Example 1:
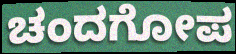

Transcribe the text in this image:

ಚಂದಗೋಪ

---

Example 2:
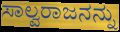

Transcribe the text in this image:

ಸಾಲ್ವರಾಜನನ್ನು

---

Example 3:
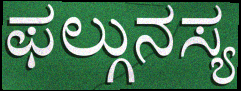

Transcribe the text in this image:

ಫಲ್ಗುನಸ್ಯ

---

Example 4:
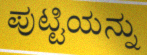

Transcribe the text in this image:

ಪುಟ್ಟಿಯನ್ನು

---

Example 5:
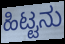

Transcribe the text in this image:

ಹಿಟ್ಟನು